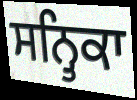
ਸਨ੍ਤਿਕਾ